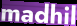
madhil